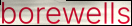
borewells